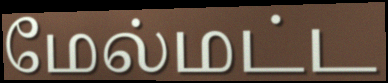
மேல்மட்ட